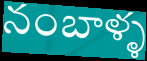
నంబాళ్ళ